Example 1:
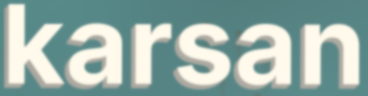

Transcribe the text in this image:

karsan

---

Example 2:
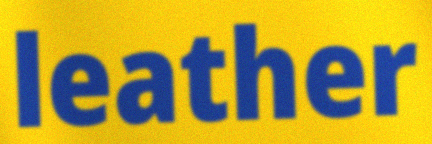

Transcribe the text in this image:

leather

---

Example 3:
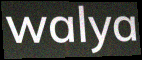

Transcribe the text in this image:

walya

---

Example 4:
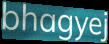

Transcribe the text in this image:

bhagyej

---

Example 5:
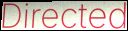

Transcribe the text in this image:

Directed